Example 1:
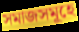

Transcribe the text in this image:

সমাজসমূহে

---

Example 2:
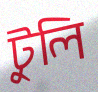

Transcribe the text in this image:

টুলি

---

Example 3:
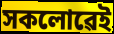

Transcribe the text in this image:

সকলোৱেই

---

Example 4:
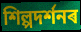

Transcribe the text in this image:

শিল্পদৰ্শনৰ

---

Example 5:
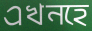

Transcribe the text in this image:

এখনহে